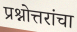
प्रश्नोत्तरांचा